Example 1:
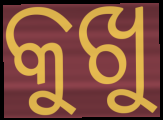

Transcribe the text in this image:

କୁଖୁ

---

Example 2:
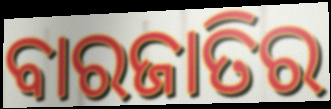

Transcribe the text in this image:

ବାରଜାତିର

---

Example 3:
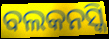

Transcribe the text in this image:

ବଲକନସ୍କି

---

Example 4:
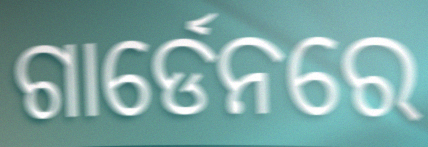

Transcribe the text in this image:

ଗାର୍ଡେନରେ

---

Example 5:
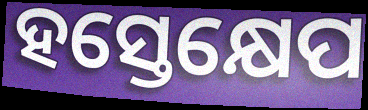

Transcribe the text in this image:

ହସ୍ତେକ୍ଷେପ